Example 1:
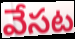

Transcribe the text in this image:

వేసట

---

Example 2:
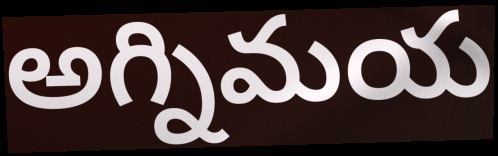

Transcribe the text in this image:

అగ్నిమయ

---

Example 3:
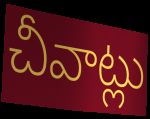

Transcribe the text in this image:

చీవాట్లు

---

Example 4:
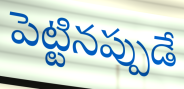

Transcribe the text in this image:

పెట్టినప్పుడే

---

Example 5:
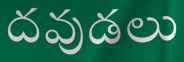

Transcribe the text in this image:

దవుడలు